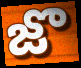
జొ